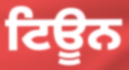
ਟਿਊਨ